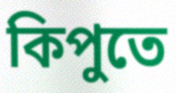
কিপুতে